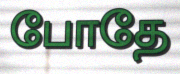
போதே